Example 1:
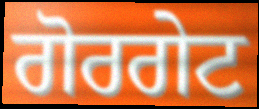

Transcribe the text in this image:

ਗੋਰਗੇਟ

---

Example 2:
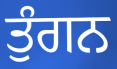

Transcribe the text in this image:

ਤੁੰਗਨ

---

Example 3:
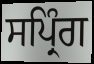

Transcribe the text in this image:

ਸਪ੍ਰਿੰਗ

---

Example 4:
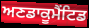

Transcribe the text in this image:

ਅਣਡਾਕੂਮੈਂਟਿਡ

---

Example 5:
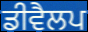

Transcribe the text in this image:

ਡੀਵੈਲਪ